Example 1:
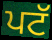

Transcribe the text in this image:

ਪਟੱ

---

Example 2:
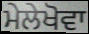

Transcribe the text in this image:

ਮੇਲੇਖੋਵਾ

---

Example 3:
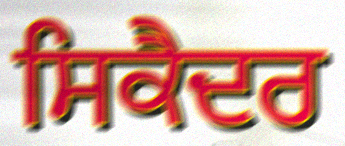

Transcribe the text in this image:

ਸਿਕੈਦਰ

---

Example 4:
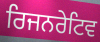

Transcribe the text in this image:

ਰਿਜਨਰੇਟਿਵ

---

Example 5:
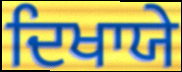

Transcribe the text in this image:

ਦਿਖਾਯੇ